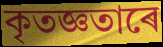
কৃতজ্ঞতাৰে